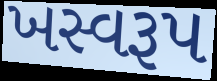
ખસ્વરૂપ